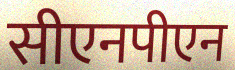
सीएनपीएन